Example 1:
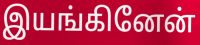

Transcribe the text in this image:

இயங்கினேன்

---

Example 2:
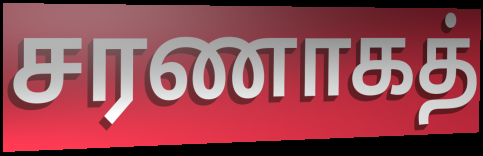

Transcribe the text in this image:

சரணாகத்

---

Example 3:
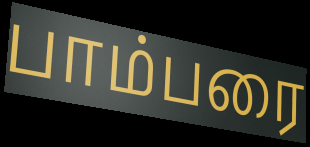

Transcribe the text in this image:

பாம்பரை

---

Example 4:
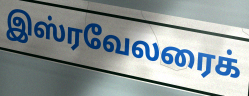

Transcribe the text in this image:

இஸ்ரவேலரைக்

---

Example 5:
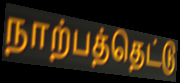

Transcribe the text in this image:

நாற்பத்தெட்டு